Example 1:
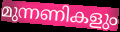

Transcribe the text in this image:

മുന്നണികളും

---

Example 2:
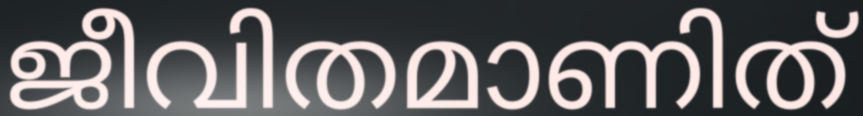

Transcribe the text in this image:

ജീവിതമാണിത്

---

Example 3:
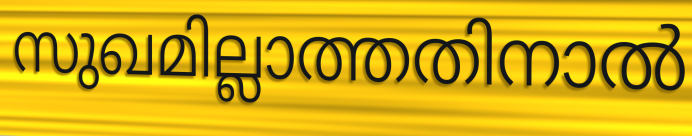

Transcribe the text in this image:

സുഖമില്ലാത്തതിനാൽ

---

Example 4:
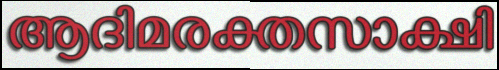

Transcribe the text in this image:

ആദിമരക്തസാക്ഷി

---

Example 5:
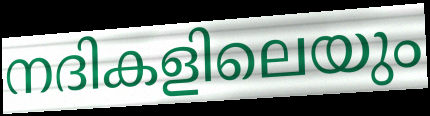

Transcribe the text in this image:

നദികളിലെയും